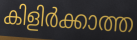
കിളിർക്കാത്ത